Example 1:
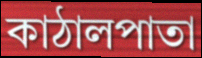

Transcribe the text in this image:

কাঠালপাতা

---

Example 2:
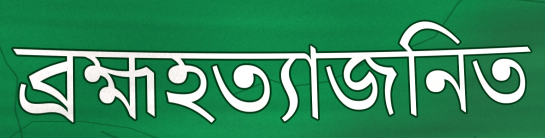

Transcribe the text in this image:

ব্রহ্মহত্যাজনিত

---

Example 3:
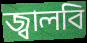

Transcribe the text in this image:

জ্বালবি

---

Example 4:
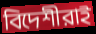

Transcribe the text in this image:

বিদেশীরাই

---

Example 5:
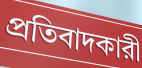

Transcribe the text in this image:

প্রতিবাদকারী